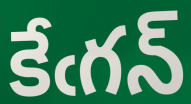
కేఁగన్